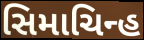
સિમાચિન્હ